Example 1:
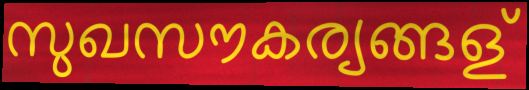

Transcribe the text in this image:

സുഖസൗകര്യങ്ങള്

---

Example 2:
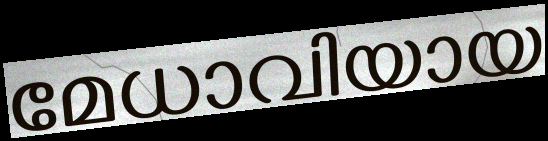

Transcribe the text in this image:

മേധാവിയായ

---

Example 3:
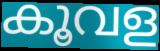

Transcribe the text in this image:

കൂവള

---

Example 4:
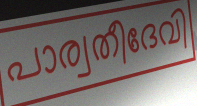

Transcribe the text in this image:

പാര്വതീദേവി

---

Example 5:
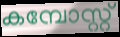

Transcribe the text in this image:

കമ്പോസ്റ്റ്